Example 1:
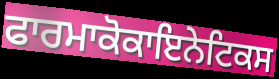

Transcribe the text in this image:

ਫਾਰਮਾਕੋਕਾਇਨੇਟਿਕਸ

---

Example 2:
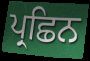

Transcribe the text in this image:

ਪ੍ਰਛਿਨ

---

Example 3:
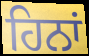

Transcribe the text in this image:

ਹਿਨਾਂ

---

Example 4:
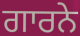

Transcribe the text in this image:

ਗਾਰਨੇ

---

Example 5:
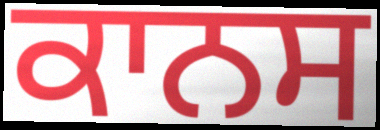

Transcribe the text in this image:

ਕਾਨਸ